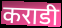
कराडी